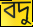
বদু